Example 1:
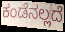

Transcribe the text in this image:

ಕಂಡೆನಲ್ಲದೆ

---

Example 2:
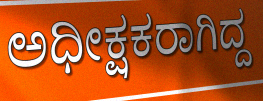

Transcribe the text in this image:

ಅಧೀಕ್ಷಕರಾಗಿದ್ದ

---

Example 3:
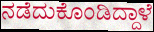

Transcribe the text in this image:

ನಡೆದುಕೊಂಡಿದ್ದಾಳೆ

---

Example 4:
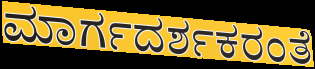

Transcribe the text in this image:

ಮಾರ್ಗದರ್ಶಕರಂತೆ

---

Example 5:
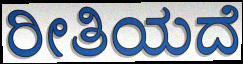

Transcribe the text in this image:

ರೀತಿಯದೆ